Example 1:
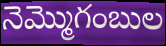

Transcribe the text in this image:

నెమ్మొగంబుల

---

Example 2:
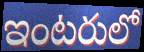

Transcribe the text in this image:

ఇంటరులో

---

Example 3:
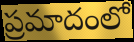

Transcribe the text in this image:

ప్రమాదంలో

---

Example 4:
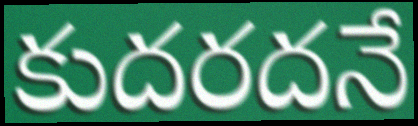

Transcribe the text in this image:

కుదరదనే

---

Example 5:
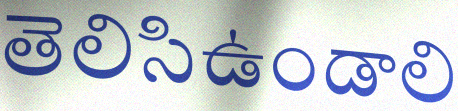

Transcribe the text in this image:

తెలిసిఉండాలి